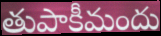
తుపాకీమందు